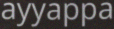
ayyappa